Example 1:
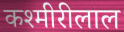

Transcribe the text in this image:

कश्मीरीलाल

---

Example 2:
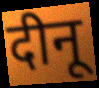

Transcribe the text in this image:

दीनू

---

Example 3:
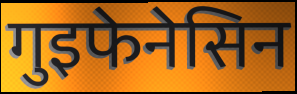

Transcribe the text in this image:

गुइफेनेसिन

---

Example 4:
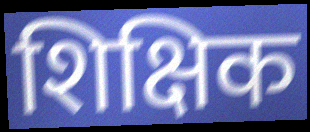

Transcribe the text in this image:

शिक्षिक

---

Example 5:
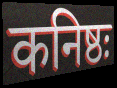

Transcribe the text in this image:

कनिष्ठः